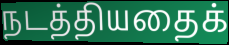
நடத்தியதைக்